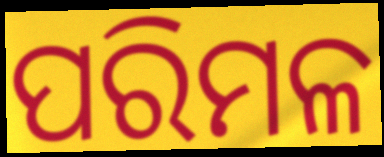
ପରିମଳ